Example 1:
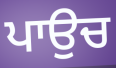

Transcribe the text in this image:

ਪਾਉਚ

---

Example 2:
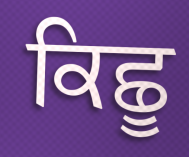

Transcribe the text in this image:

ਕਿਛੂ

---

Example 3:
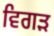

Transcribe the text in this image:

ਵਿਗੜ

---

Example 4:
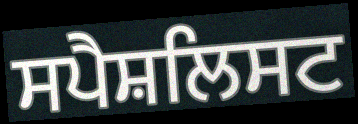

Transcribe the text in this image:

ਸਪੈਸ਼ਲਿਸਟ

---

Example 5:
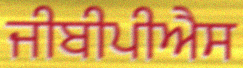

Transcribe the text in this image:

ਜੀਬੀਪੀਐਸ